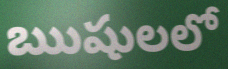
ఋషులలో